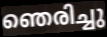
ഞെരിച്ചു